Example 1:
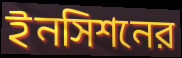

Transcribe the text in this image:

ইনসিশনের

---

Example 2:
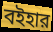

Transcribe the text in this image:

বইহার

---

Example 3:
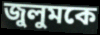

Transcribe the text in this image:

জুলুমকে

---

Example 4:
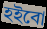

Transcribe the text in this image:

হইবো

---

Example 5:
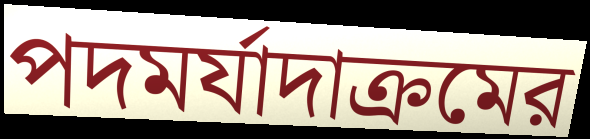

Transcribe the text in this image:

পদমর্যাদাক্রমের